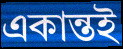
একান্তই